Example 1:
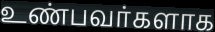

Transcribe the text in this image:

உண்பவர்களாக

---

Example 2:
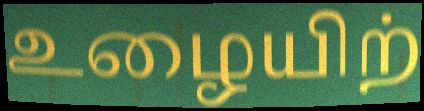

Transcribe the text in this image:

உழையிற்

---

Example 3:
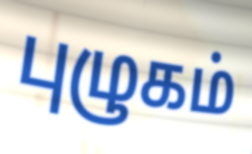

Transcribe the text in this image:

புழுகம்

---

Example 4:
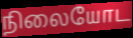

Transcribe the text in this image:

நிலையோட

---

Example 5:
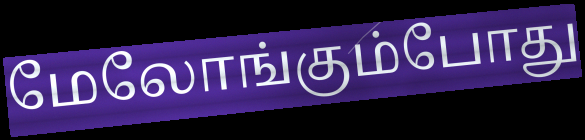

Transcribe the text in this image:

மேலோங்கும்போது